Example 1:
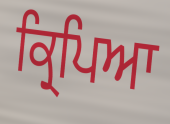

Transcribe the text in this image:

ਕ੍ਰਿਪਿਆ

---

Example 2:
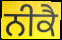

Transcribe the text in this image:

ਨੀਕੈ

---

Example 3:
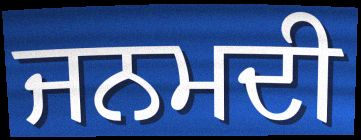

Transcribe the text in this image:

ਜਨਮਦੀ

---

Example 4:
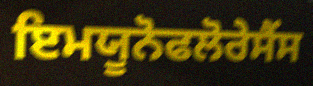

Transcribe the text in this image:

ਇਮਯੂਨੋਫਲੋਰੇਸੈਂਸ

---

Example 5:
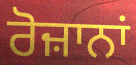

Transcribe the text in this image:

ਰੋਜ਼ਾਨਾਂ